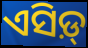
ଏସିଡ଼୍